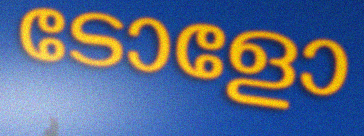
ടോളോ